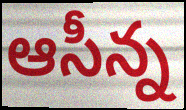
ఆసీన్న